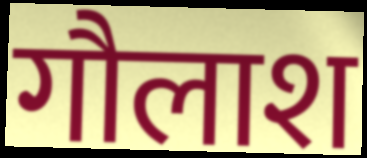
गौलाश